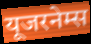
यूजरनेम्स